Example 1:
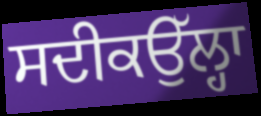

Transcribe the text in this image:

ਸਦੀਕਉੱਲ੍ਹਾ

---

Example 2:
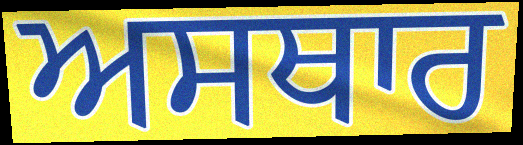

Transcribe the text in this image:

ਅਸਥਾਰ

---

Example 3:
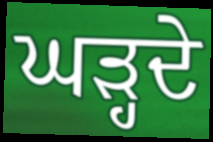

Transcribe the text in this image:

ਘੜ੍ਹਦੇ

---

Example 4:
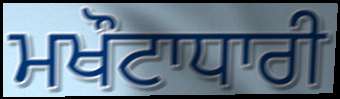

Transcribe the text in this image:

ਮਖੌਟਾਧਾਰੀ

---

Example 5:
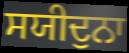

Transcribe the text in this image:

ਸਯੀਦੁਨਾ